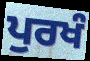
ਪੁਰਖੰ